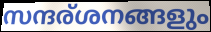
സന്ദര്ശനങ്ങളും